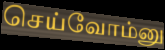
செய்வோம்னு